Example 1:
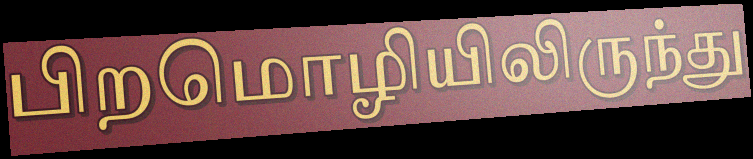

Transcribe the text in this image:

பிறமொழியிலிருந்து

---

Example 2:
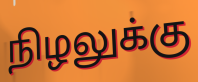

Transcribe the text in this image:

நிழலுக்கு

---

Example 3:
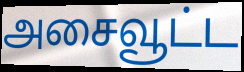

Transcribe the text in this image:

அசைவூட்ட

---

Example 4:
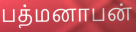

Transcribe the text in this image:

பத்மனாபன்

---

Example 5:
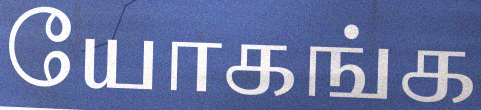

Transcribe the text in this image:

யோகங்க